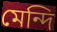
মেন্দি